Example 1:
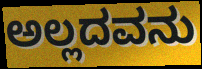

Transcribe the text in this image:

ಅಲ್ಲದವನು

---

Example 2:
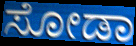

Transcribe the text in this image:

ಸೋಡಾ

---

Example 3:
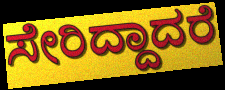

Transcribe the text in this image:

ಸೇರಿದ್ದಾದರೆ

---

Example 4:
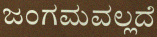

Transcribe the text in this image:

ಜಂಗಮವಲ್ಲದೆ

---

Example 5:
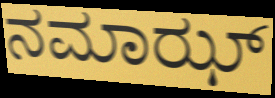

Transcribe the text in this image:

ನಮಾಝ್